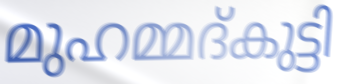
മുഹമ്മദ്കുട്ടി